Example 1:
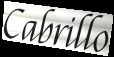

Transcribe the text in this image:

Cabrillo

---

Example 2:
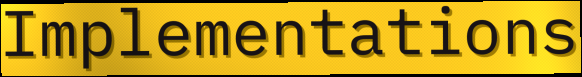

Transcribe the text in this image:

Implementations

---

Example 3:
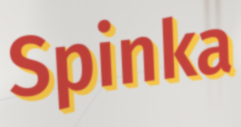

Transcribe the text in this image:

Spinka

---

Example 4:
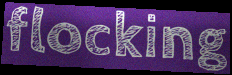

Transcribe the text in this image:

flocking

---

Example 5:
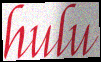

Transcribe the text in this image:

hulu